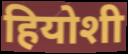
हियोशी